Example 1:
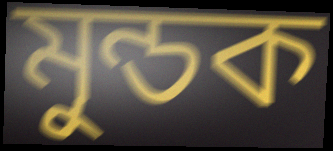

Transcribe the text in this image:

মুন্ডক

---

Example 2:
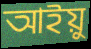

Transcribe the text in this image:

আইয়ু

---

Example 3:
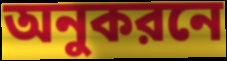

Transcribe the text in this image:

অনুকরনে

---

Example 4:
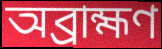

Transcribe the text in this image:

অব্রাহ্মণ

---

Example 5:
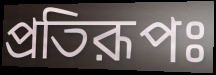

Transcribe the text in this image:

প্রতিরূপঃ